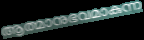
ആത്മാനുഭവമാകുന്ന